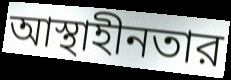
আস্থাহীনতার